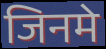
जिनमे